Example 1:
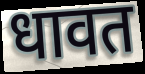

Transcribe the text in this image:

धावत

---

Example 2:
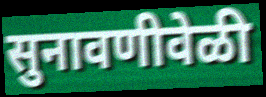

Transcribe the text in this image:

सुनावणीवेळी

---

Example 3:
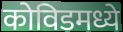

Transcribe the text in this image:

कोविडमध्ये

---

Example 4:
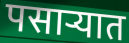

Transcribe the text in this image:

पसार्‍यात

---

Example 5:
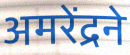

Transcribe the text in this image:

अमरेंद्रने